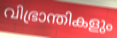
വിഭ്രാന്തികളും